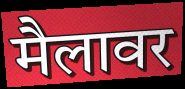
मैलावर